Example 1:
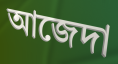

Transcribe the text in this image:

আজেদা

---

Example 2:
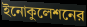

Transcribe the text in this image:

ইনোকুলেশনের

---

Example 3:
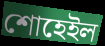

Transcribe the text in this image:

শোহেইল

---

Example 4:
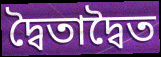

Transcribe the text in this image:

দ্বৈতাদ্বৈত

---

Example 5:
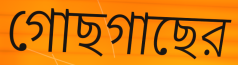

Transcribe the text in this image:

গোছগাছের